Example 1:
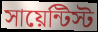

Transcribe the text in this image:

সায়েন্টিস্ট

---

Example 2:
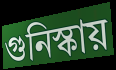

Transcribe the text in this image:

গুনিস্কায়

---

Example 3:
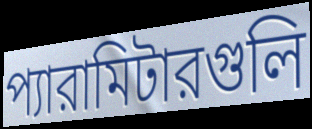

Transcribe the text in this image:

প্যারামিটারগুলি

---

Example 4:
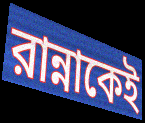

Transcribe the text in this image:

রান্নাকেই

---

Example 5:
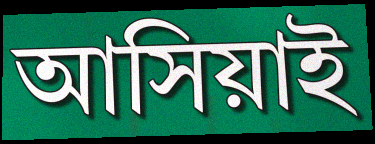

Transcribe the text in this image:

আসিয়াই